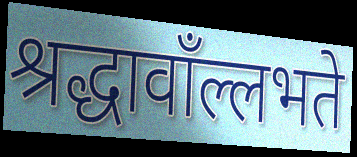
श्रद्धावाँल्लभते